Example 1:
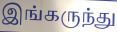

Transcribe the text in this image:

இங்கருந்து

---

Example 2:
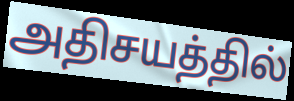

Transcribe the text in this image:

அதிசயத்தில்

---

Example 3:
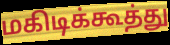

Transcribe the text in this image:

மகிடிக்கூத்து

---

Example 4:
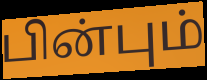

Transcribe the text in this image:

பின்பும்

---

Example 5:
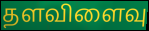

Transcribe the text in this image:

தளவிளைவு